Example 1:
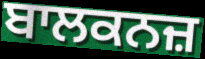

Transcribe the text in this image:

ਬਾਲਕਨਜ਼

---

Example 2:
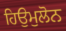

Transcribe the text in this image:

ਹਿਉਮੁਲੋਨ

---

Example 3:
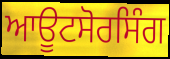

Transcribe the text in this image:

ਆਊਟਸੋਰਸਿੰਗ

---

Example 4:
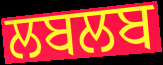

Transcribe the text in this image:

ਲਬਲਬ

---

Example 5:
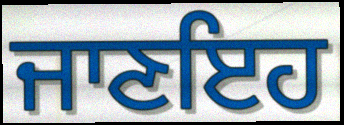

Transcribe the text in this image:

ਜਾਣਇਹ